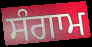
ਸੰਗਾਮ